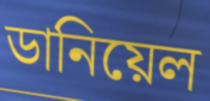
ডানিয়েল